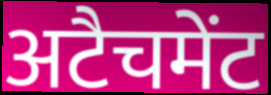
अटैचमेंट